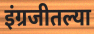
इंग्रजीतल्या